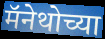
मॅनेथोच्या